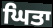
ਘਿਤਾ